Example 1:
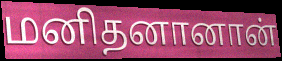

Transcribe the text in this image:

மனிதனானான்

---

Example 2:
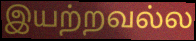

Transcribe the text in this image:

இயற்றவல்ல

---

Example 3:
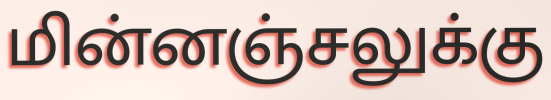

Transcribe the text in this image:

மின்னஞ்சலுக்கு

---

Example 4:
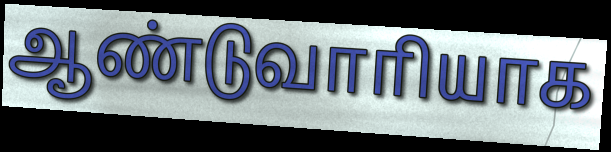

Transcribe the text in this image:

ஆண்டுவாரியாக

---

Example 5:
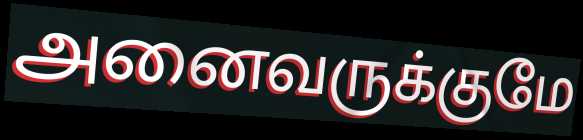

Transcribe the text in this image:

அனைவருக்குமே